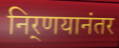
निर्णयानंतर